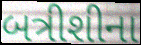
બત્રીશીના